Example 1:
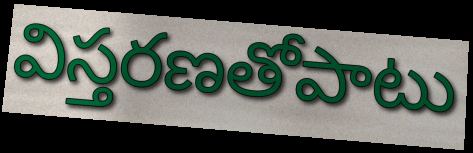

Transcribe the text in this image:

విస్తరణతోపాటు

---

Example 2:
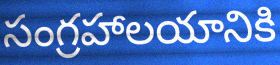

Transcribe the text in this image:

సంగ్రహాలయానికి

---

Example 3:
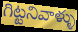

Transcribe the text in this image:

గిట్టనివాళ్ళు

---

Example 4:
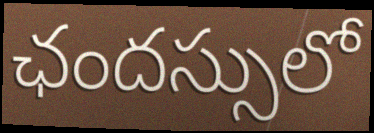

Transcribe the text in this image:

ఛందస్సులో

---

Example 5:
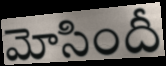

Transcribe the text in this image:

మోసిందీ